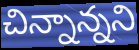
చిన్నాన్నని